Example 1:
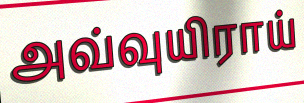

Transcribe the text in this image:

அவ்வுயிராய்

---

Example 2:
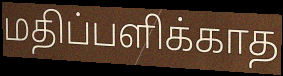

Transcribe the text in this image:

மதிப்பளிக்காத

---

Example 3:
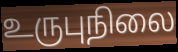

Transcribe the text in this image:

உருபுநிலை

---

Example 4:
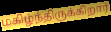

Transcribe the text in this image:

மகிழ்ந்திருக்கிறார்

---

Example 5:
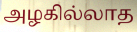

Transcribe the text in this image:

அழகில்லாத